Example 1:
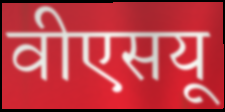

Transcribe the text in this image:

वीएसयू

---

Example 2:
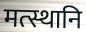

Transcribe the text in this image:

मत्स्थानि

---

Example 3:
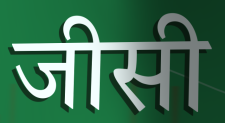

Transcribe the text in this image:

जीसी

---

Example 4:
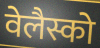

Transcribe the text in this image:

वेलैस्को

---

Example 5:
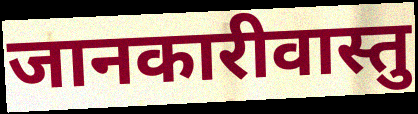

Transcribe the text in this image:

जानकारीवास्तु